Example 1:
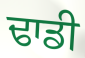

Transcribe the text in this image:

ਢਾਡੀ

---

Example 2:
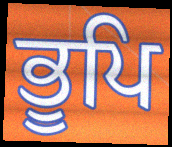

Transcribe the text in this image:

ਭੂਪਿ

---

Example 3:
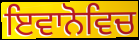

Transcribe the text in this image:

ਇਵਾਨੋਵਿਚ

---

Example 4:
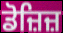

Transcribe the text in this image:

ਡੋਜ਼ਿਜ਼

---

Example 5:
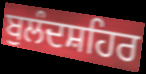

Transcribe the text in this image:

ਬੁਲੰਦਸ਼ਹਿਰ